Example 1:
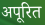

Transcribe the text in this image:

अपूरित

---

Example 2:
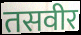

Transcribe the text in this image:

तसवीर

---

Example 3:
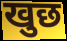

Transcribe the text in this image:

खुछ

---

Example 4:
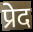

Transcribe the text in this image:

प्रेद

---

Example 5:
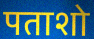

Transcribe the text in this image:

पताशो